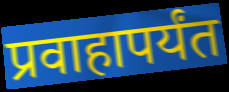
प्रवाहापर्यंत